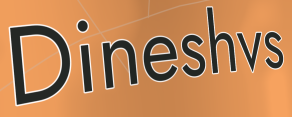
Dineshvs